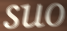
suo